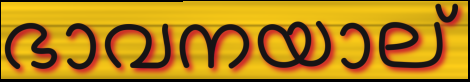
ഭാവനയാല്